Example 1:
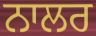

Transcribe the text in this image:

ਨਾਲਰ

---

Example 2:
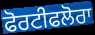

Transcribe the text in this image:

ਫੋਰਟੀਫਲੋਰਾ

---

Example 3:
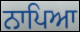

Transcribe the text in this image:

ਨਾਪਿਆ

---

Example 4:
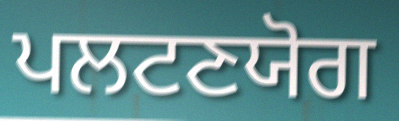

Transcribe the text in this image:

ਪਲਟਣਯੋਗ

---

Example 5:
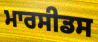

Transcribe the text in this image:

ਮਾਰਸੀਡਸ